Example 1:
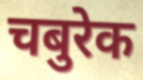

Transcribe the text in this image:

चबुरेक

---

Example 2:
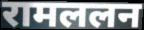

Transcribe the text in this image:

रामललन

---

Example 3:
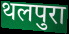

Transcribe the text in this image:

थलपुरा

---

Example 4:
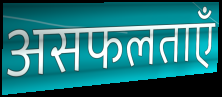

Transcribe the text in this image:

असफलताएँ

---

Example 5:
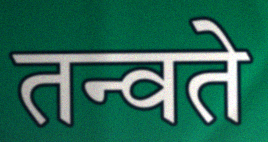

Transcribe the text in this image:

तन्वते